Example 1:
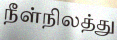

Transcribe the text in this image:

நீள்நிலத்து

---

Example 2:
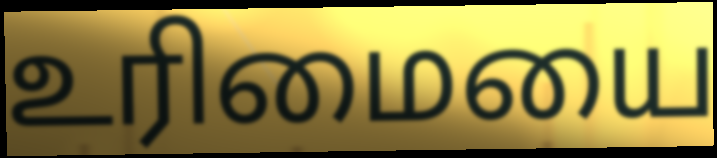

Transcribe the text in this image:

உரிமையை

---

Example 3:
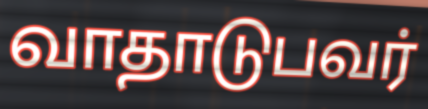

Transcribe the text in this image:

வாதாடுபவர்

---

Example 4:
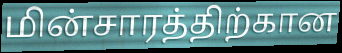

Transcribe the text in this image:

மின்சாரத்திற்கான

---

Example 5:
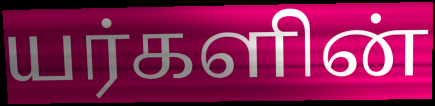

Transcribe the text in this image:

யர்களின்